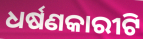
ଧର୍ଷଣକାରୀଟି